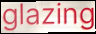
glazing